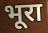
भूरा